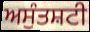
ਅਸੁੰਤਸ਼ਟੀ